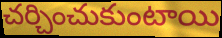
చర్చించుకుంటాయి